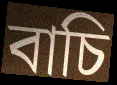
বাচি